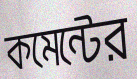
কমেন্টের